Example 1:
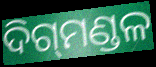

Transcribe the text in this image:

ଦିଗ୍‍ମଣ୍ଡଳ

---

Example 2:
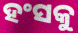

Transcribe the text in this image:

ହଂସକୁ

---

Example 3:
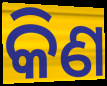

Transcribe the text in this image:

କିଣ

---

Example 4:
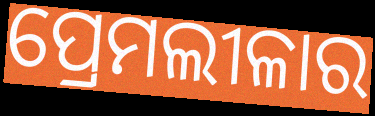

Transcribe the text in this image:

ପ୍ରେମଲୀଳାର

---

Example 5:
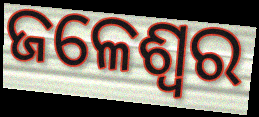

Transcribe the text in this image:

ଜଳେଶ୍ବର